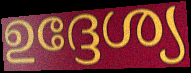
ഉദ്ദേശ്യ